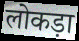
लोकड़ा